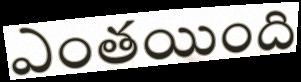
ఎంతయింది